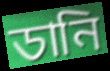
ডানি